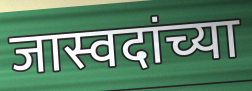
जास्वदांच्या